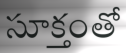
సూక్తంతో